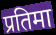
प्रतिमा